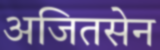
अजितसेन